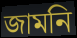
জামনি